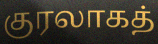
குரலாகத்